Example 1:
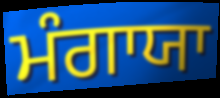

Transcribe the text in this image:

ਮੰਗਾਯਾ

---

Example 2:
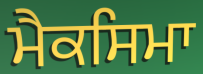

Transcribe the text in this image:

ਮੈਕਸਿਮਾ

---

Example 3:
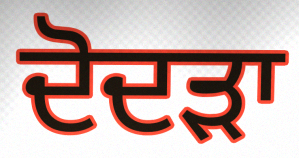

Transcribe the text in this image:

ਦੋਦੜਾ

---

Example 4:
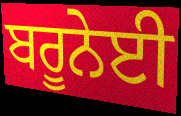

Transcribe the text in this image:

ਬਰੂਨੇਈ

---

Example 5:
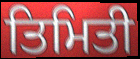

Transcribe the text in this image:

ਤਿਮਿਤੀ